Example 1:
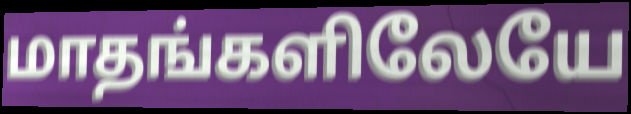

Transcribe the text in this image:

மாதங்களிலேயே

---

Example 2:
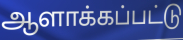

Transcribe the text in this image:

ஆளாக்கப்பட்டு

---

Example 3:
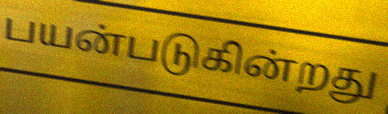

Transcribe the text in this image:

பயன்படுகின்றது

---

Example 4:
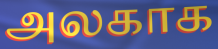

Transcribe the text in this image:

அலகாக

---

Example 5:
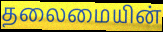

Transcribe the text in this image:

தலைமையின்